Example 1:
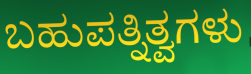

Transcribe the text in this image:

ಬಹುಪತ್ನಿತ್ವಗಳು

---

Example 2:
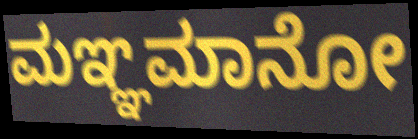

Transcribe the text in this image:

ಮಞ್ಞಮಾನೋ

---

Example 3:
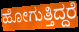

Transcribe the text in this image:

ಹೋಗುತ್ತಿದ್ದರೆ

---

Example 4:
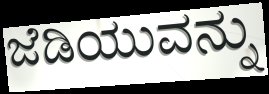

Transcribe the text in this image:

ಜೆಡಿಯುವನ್ನು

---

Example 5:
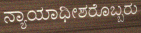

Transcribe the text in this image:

ನ್ಯಾಯಾಧೀಶರೊಬ್ಬರು